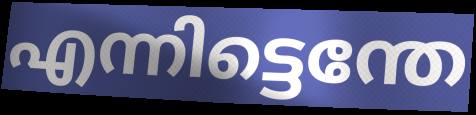
എന്നിട്ടെന്തേ